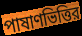
পাষাণভিত্তির